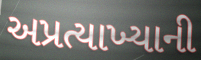
અપ્રત્યાખ્યાની